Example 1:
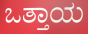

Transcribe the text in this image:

ಒತ್ತಾಯ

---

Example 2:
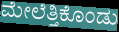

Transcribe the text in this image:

ಮೇಲೆತ್ತಿಕೊಂಡು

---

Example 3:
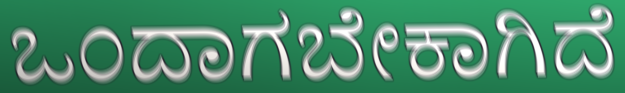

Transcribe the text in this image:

ಒಂದಾಗಬೇಕಾಗಿದೆ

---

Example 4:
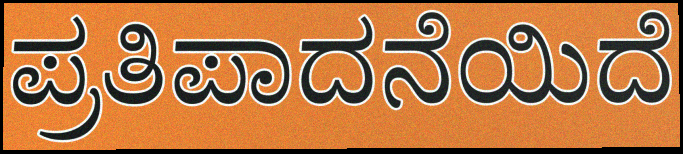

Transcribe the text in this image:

ಪ್ರತಿಪಾದನೆಯಿದೆ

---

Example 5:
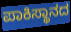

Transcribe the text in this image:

ಪಾಕಿಸ್ಥಾನದ